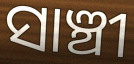
ସାଞ୍ଚୀ